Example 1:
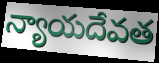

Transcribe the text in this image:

న్యాయదేవత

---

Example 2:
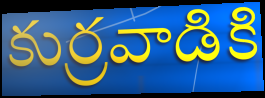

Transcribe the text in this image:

కుర్రవాడికి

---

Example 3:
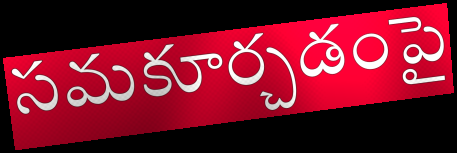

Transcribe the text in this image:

సమకూర్చడంపై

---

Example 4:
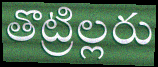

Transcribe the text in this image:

తొట్రిల్లరు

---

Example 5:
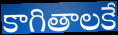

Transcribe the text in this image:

కాగితాలకే